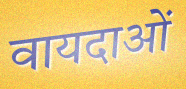
वायदाओं